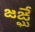
జఙ్ఘే